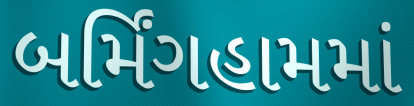
બર્મિંગહામમાં